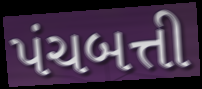
પંચબત્તી